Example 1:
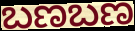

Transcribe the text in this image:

ಬಣಬಣ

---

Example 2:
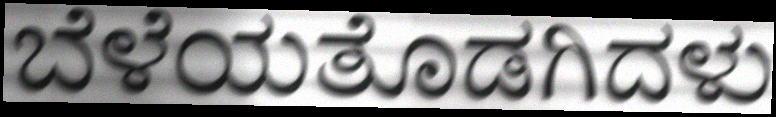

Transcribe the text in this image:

ಬೆಳೆಯತೊಡಗಿದಳು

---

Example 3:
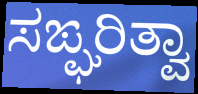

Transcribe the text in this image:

ಸಙ್ಘರಿತ್ವಾ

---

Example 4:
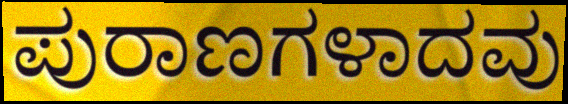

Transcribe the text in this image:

ಪುರಾಣಗಳಾದವು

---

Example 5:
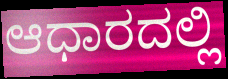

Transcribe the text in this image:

ಆಧಾರದಲ್ಲಿ